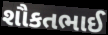
શૌકતભાઈ